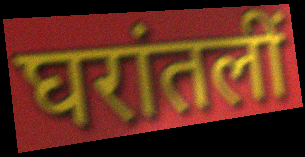
घरांतलीं